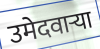
उमेदवार्‍या